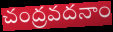
చంద్రవదనాం